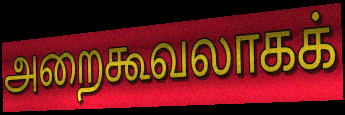
அறைகூவலாகக்